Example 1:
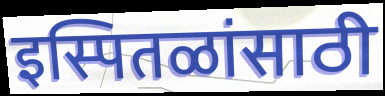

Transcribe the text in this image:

इस्पितळांसाठी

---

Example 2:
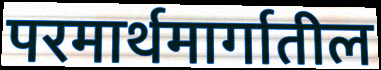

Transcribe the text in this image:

परमार्थमार्गातील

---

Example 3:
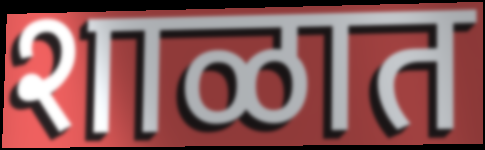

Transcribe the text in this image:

शाळात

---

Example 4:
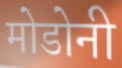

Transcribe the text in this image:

मोडोनी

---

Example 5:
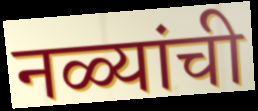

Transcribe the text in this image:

नळ्यांची